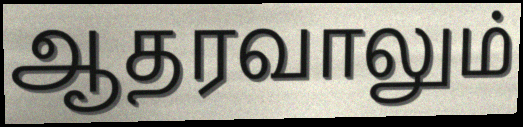
ஆதரவாலும்